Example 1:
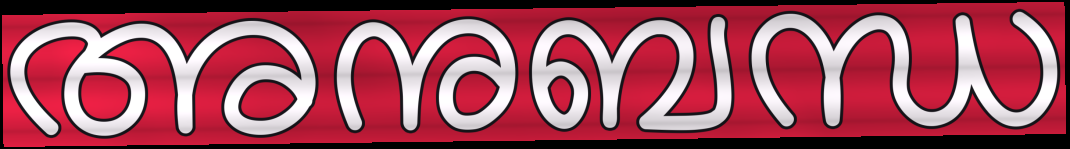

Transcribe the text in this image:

അനുബന്ധ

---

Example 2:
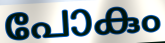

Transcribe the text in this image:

പോകും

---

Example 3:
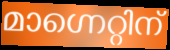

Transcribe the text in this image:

മാഗ്നെറ്റിന്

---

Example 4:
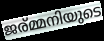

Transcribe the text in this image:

ജര്മ്മനിയുടെ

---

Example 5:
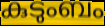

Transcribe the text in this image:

കുടുംബം